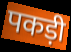
पकड़ी